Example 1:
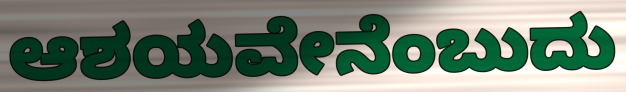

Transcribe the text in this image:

ಆಶಯವೇನೆಂಬುದು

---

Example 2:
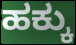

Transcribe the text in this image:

ಹಕ್ಕು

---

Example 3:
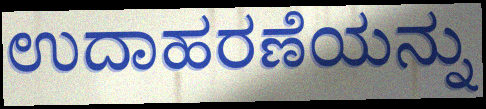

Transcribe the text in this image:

ಉದಾಹರಣೆಯನ್ನು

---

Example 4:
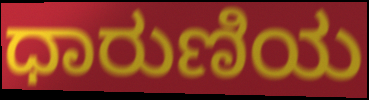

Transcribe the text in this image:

ಧಾರುಣಿಯ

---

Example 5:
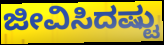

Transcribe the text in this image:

ಜೀವಿಸಿದಷ್ಟು